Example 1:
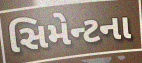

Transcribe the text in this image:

સિમેન્ટના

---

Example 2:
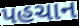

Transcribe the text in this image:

પહચાન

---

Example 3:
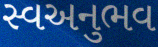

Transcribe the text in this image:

સ્વઅનુભવ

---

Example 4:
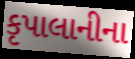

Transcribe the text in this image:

કૃપાલાનીના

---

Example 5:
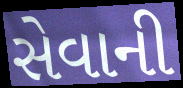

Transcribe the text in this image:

સેવાની